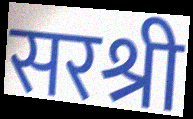
सरश्री